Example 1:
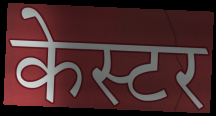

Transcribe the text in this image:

केस्टर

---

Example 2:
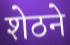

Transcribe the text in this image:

शेठने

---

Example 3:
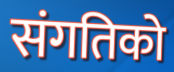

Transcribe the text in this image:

संगतिको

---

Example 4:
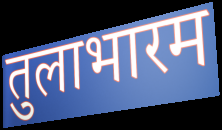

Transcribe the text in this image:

तुलाभारम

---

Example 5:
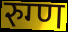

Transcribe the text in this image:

रुग्ण